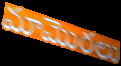
మామొరలు